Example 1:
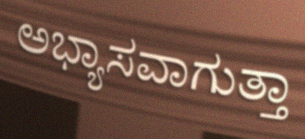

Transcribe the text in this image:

ಅಭ್ಯಾಸವಾಗುತ್ತಾ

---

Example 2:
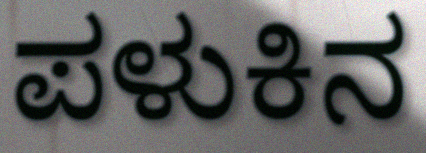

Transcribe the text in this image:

ಪಳುಕಿನ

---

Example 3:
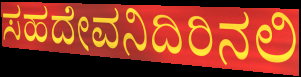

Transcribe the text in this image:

ಸಹದೇವನಿದಿರಿನಲಿ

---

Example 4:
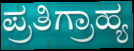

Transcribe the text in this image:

ಪ್ರತಿಗ್ರಾಹ್ಯ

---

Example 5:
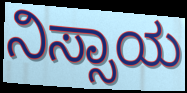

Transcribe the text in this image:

ನಿಸ್ಸಾಯ